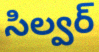
సిల్వర్